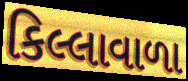
કિલ્લાવાળા